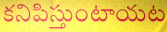
కనిపిస్తుంటాయట